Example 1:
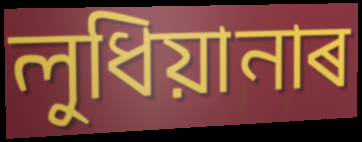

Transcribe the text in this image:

লুধিয়ানাৰ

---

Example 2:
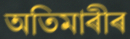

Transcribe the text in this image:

অতিমাৰীৰ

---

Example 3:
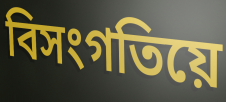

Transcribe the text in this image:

বিসংগতিয়ে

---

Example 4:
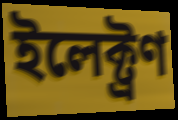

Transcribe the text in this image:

ইলেক্ট্ৰণ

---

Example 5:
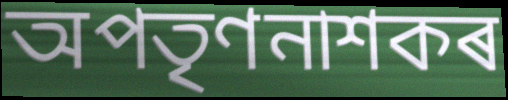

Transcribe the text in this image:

অপতৃণনাশকৰ